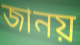
জানয়